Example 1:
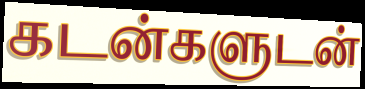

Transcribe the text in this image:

கடன்களுடன்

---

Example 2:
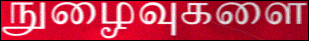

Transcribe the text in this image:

நுழைவுகளை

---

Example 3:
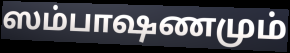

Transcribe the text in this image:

ஸம்பாஷணமும்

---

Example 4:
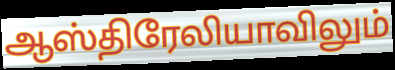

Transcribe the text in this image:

ஆஸ்திரேலியாவிலும்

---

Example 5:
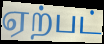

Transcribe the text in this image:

ஏற்பட்